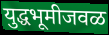
युद्धभूमीजवळ